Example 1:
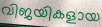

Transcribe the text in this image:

വിജയികളായ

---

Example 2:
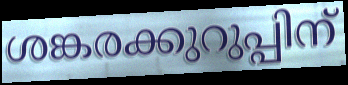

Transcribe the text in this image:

ശങ്കരക്കുറുപ്പിന്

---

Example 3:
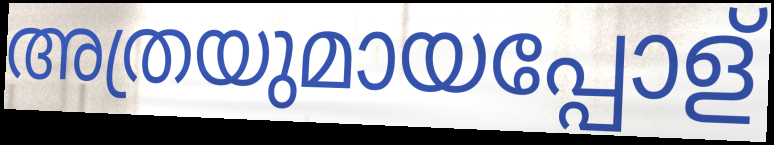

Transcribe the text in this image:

അത്രയുമായപ്പോള്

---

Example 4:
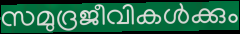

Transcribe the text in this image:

സമുദ്രജീവികൾക്കും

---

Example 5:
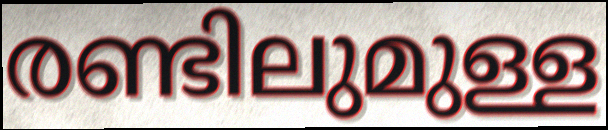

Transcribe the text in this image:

രണ്ടിലുമുള്ള